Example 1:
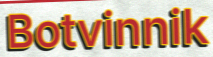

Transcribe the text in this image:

Botvinnik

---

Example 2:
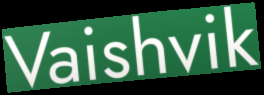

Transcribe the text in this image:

Vaishvik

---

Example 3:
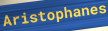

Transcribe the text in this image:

Aristophanes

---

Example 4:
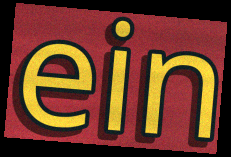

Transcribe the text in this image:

ein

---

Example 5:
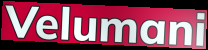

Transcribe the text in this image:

Velumani